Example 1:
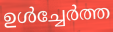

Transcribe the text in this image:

ഉൾച്ചേർത്ത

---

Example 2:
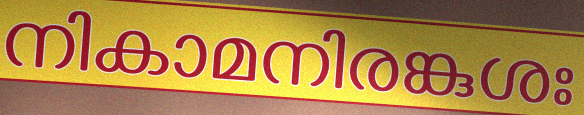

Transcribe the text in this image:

നികാമനിരങ്കുശഃ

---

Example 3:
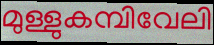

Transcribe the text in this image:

മുള്ളുകമ്പിവേലി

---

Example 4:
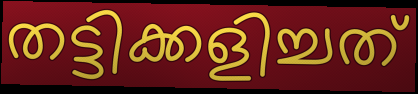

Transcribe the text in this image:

തട്ടിക്കളിച്ചത്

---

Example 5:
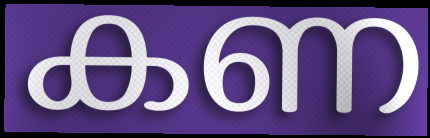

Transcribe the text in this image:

കണ